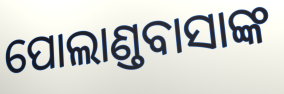
ପୋଲାଣ୍ଡବାସାଙ୍କ